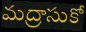
మద్రాసుకో